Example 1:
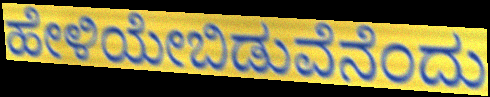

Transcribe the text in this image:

ಹೇಳಿಯೇಬಿಡುವೆನೆಂದು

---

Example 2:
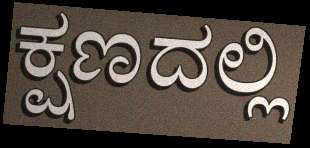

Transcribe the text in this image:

ಕ್ಷಣದಲ್ಲಿ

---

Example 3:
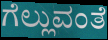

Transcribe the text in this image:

ಗೆಲ್ಲುವಂತೆ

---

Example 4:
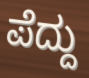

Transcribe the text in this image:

ಪೆದ್ದು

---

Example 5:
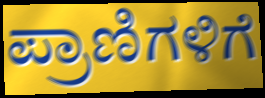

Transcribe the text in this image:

ಪ್ರಾಣಿಗಳಿಗೆ